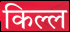
किल्ल